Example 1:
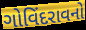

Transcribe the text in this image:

ગોવિંદરાવનો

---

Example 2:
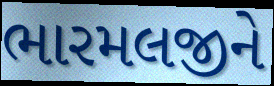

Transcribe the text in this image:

ભારમલજીને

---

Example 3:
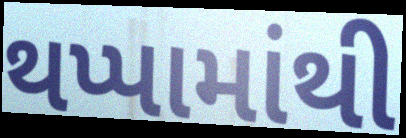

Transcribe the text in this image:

થપ્પામાંથી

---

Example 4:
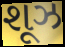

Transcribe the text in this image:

શૂઝ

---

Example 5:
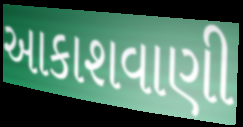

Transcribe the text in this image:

આકાશવાણી